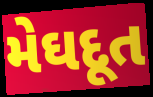
મેઘદૂત